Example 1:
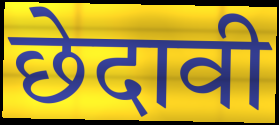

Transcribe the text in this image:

छेदावी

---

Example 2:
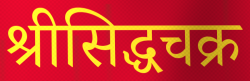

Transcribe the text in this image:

श्रीसिद्धचक्र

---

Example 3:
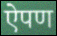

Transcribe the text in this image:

ऐपण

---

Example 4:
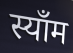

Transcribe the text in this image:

स्याँम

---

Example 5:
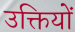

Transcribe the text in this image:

उक्तियों